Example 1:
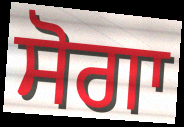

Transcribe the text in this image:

ਸੋਗਾ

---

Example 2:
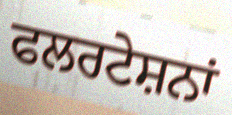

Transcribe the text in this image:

ਫਲਰਟੇਸ਼ਨਾਂ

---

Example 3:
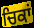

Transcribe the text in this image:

ਚਿਕਾਂ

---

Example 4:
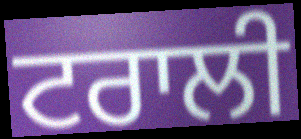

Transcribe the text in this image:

ਟਰਾਲੀ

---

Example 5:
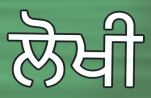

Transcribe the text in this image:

ਲੋਖੀ